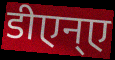
डीएन्ए